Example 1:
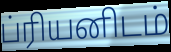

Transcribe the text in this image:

ப்ரியனிடம்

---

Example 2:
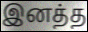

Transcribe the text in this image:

இனத்த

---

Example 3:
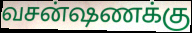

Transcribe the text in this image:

வசன்ஷணக்கு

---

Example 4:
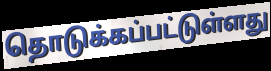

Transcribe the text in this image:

தொடுக்கப்பட்டுள்ளது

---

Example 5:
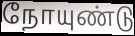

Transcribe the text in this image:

நோயுண்டு